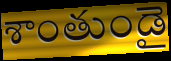
శాంతుండై